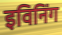
इविनिंग